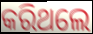
କରିଥଲେ